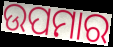
ଉପମାର